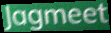
Jagmeet